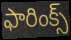
ఫారింక్స్